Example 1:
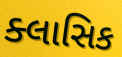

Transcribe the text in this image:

ક્લાસિક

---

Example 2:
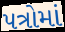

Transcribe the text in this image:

પત્રોમાં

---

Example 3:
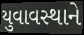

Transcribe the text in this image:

યુવાવસ્થાને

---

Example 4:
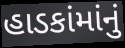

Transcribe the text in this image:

હાડકાંમાંનું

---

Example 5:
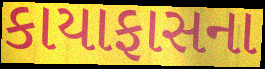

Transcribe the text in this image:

કાયાફાસના